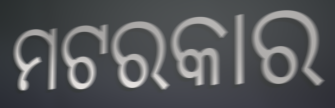
ମଟରକାର